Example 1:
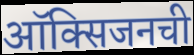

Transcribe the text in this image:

ऑक्सिजनची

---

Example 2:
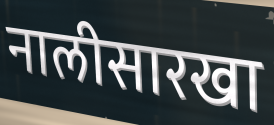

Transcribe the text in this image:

नालीसारखा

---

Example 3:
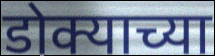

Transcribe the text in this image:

डोक्याच्या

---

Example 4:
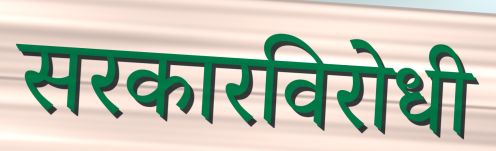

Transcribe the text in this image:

सरकारविरोधी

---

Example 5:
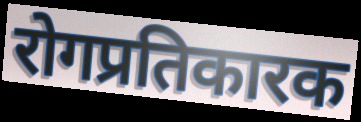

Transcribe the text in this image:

रोगप्रतिकारक